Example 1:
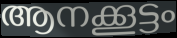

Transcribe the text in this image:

ആനക്കൂട്ടം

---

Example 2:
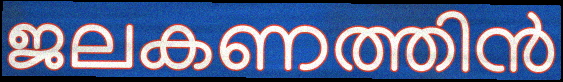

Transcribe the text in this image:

ജലകണത്തിൻ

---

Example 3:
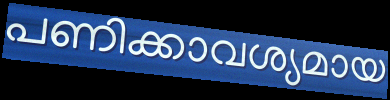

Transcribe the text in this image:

പണിക്കാവശ്യമായ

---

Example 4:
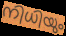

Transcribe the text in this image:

നിധിയും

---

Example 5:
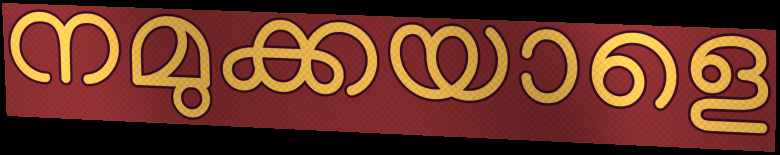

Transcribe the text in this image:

നമുക്കയാളെ